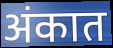
अंकात